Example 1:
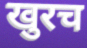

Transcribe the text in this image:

खुरच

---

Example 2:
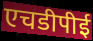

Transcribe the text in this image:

एचडीपीई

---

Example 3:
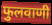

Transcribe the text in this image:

फुलवाणी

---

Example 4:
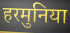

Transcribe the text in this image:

हरमुनिया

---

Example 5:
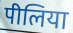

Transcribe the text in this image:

पीलिया